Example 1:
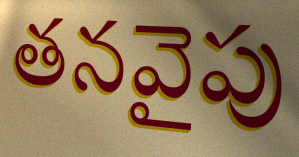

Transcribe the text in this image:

తనవైపు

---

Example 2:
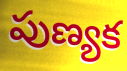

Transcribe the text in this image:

పుణ్యక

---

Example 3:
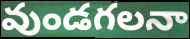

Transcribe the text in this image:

వుండగలనా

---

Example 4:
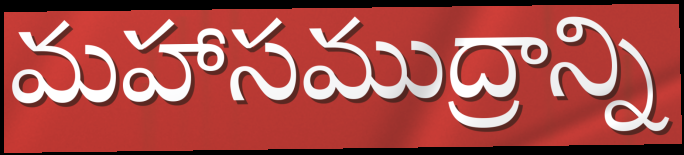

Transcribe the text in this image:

మహాసముద్రాన్ని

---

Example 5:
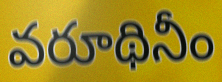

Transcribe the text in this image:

వరూథినీం